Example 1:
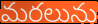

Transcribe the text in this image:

మరలును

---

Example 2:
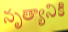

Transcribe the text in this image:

నృత్యానికి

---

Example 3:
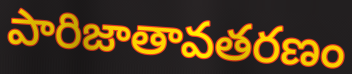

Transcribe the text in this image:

పారిజాతావతరణం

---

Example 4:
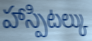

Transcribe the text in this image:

హాస్పిటల్కు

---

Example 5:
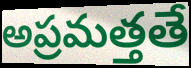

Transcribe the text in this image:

అప్రమత్తతే